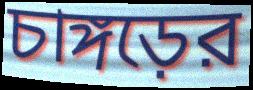
চাঙ্গড়ের